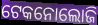
ଟେକନୋଲୋଜି